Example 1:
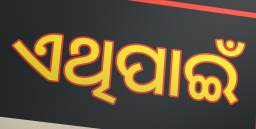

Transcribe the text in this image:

ଏଥିପାଇଁ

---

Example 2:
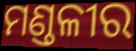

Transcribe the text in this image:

ମଣ୍ଡଳୀର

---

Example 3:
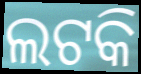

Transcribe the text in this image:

ଲଟକି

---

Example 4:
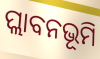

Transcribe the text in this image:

ପ୍ଲାବନଭୂମି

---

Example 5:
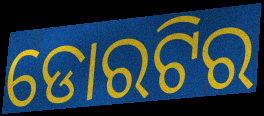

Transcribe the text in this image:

ଡୋରଟିର